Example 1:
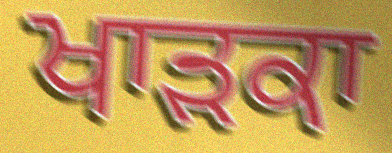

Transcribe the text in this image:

ਖਾੜਕਾ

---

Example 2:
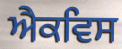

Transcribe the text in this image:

ਐਕਵਿਸ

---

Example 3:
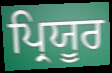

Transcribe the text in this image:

ਪ੍ਰਿਯੂਰ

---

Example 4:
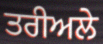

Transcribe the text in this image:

ਤਰੀਅਲੇ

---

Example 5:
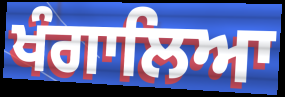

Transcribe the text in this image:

ਖੰਗਾਲਿਆ